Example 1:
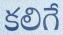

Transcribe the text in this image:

కలిగే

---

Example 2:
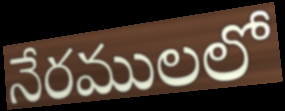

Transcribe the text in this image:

నేరములలో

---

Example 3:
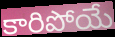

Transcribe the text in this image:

కారిపోయే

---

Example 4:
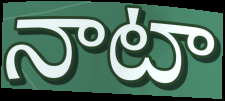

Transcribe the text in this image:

నాటా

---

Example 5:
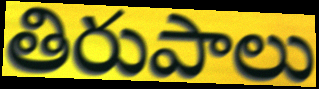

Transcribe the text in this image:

తిరుపాలు